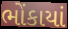
ભોંકાયાં